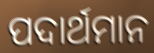
ପଦାର୍ଥମାନ